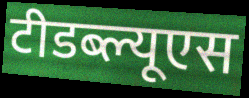
टीडब्ल्यूएस